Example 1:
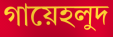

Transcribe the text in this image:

গায়েহলুদ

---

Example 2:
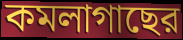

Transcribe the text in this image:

কমলাগাছের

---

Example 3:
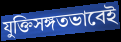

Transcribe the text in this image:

যুক্তিসঙ্গতভাবেই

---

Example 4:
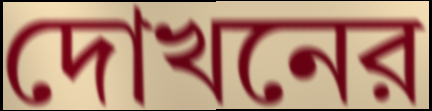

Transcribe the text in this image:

দোখনের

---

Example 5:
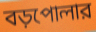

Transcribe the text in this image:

বড়পোলার